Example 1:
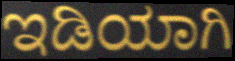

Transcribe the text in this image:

ಇಡಿಯಾಗಿ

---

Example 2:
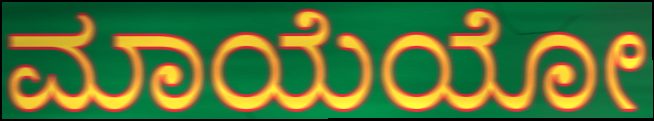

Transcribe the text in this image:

ಮಾಯೆಯೋ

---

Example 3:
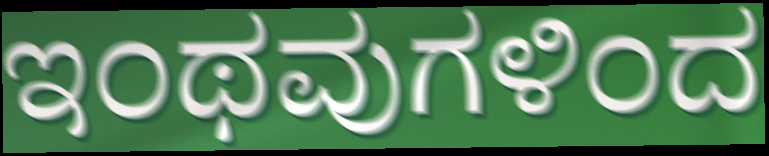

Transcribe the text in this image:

ಇಂಥವುಗಳಿಂದ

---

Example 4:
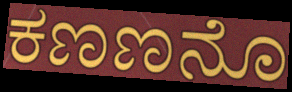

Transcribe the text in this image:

ಕಣಣನೊ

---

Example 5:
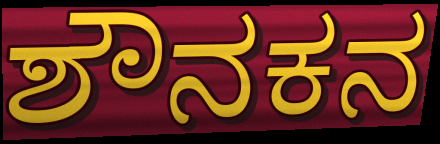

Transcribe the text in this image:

ಶೌನಕನ